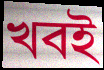
খবই